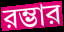
রম্ভার